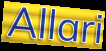
Allari